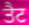
ਤੈਟ